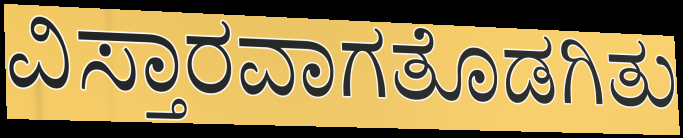
ವಿಸ್ತಾರವಾಗತೊಡಗಿತು